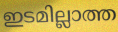
ഇടമില്ലാത്ത